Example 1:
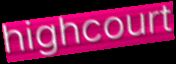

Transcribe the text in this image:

highcourt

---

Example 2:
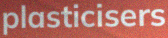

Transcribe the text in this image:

plasticisers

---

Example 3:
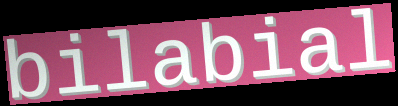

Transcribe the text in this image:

bilabial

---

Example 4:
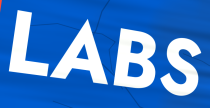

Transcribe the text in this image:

LABS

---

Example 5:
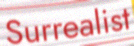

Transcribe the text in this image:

Surrealist